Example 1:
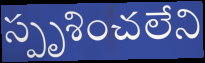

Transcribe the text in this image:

స్పృశించలేని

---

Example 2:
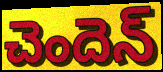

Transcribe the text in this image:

చెందెన్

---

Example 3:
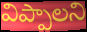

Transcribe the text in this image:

విప్పాలని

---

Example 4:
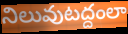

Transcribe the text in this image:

నిలువుటద్దంలా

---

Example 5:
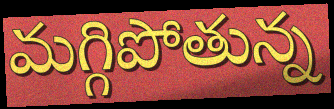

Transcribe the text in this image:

మగ్గిపోతున్న